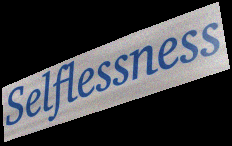
Selflessness